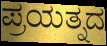
ಪ್ರಯತ್ನದ